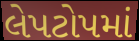
લેપટોપમાં